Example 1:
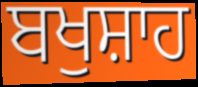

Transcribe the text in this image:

ਬਖੁਸ਼ਾਹ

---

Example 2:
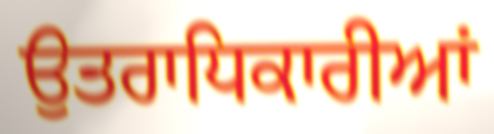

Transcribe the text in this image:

ਉਤਰਾਧਿਕਾਰੀਆਂ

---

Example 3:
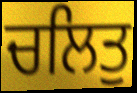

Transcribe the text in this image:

ਚਲਿਤੁ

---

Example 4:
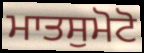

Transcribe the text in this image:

ਮਾਤਸੁਮੋਟੋ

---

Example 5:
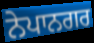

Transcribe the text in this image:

ਨੇਪਾਨਗਰ